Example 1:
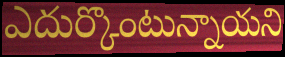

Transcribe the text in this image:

ఎదుర్కొంటున్నాయని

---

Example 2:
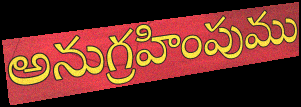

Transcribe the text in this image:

అనుగ్రహింపుము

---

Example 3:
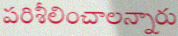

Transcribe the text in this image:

పరిశీలించాలన్నారు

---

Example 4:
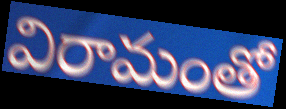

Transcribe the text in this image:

విరామంతో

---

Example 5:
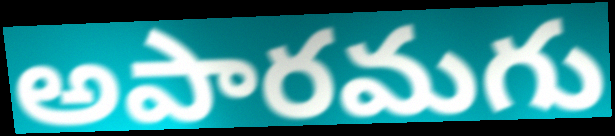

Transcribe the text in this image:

అపారమగు